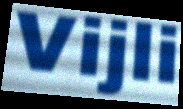
Vijli